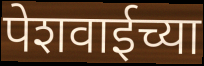
पेशवाईच्या